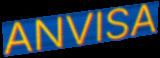
ANVISA